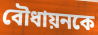
বৌধায়নকে